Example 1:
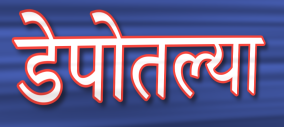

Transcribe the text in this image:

डेपोतल्या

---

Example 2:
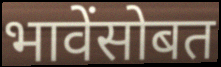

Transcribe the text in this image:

भावेंसोबत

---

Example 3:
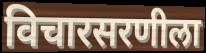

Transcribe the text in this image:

विचारसरणीला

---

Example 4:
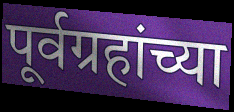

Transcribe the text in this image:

पूर्वग्रहांच्या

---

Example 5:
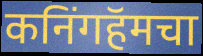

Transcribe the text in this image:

कनिंगहॅमचा